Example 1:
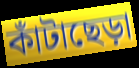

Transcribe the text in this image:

কাঁটাছেড়া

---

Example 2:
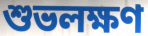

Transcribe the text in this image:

শুভলক্ষণ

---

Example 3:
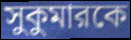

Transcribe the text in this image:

সুকুমারকে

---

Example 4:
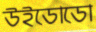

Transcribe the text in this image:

উইডোডো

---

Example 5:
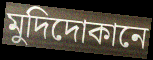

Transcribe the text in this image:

মুদিদোকানে